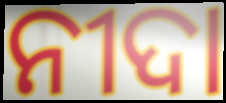
ନୀଦା